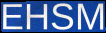
EHSM